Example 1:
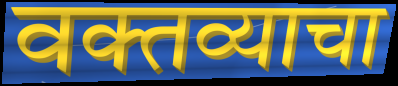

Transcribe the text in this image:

वक्तव्याचा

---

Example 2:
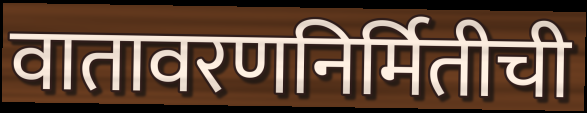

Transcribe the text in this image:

वातावरणनिर्मितीची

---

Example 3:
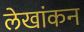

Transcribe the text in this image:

लेखांकन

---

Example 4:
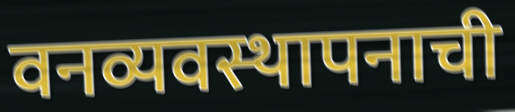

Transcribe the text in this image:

वनव्यवस्थापनाची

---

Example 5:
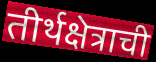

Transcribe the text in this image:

तीर्थक्षेत्राची